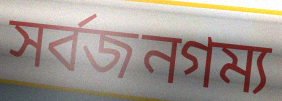
সর্বজনগম্য